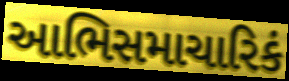
આભિસમાચારિકં